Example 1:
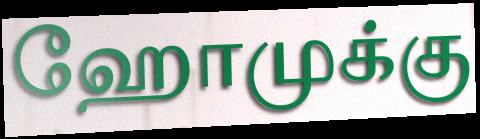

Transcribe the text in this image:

ஹோமுக்கு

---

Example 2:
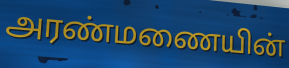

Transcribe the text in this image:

அரண்மணையின்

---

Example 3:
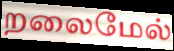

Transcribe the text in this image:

றலைமேல்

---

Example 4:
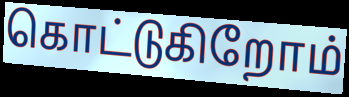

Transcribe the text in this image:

கொட்டுகிறோம்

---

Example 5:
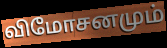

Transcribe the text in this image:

விமோசனமும்